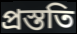
প্রস্ততি